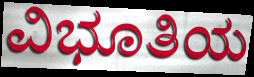
ವಿಭೂತಿಯ